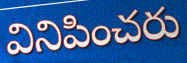
వినిపించరు